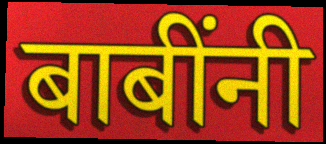
बाबींनी